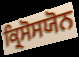
ਕ੍ਰਿਸੋਸਯੋਨ